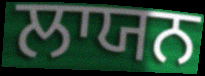
ਲਾਯਨ